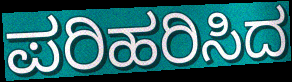
ಪರಿಹರಿಸಿದ